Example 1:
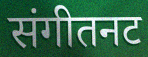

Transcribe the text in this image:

संगीतनट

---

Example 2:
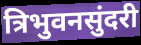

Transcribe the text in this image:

त्रिभुवनसुंदरी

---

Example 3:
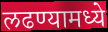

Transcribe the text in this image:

लढण्यामध्ये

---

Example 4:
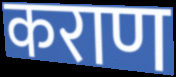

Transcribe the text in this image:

कराण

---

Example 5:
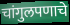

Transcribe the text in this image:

चांगुलपणाचे